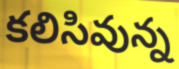
కలిసివున్న